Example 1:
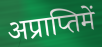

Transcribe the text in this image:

अप्राप्तिमें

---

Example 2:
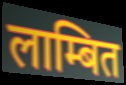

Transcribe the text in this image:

लाम्बित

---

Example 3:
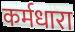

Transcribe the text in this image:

कर्मधारा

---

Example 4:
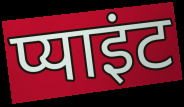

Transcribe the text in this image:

प्याइंट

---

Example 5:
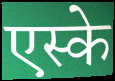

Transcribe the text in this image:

एस्के